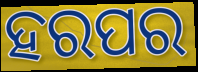
ହରପର